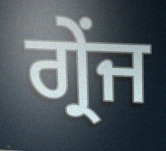
ਗ੍ਰੇਂਜ